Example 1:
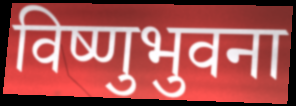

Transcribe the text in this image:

विष्णुभुवना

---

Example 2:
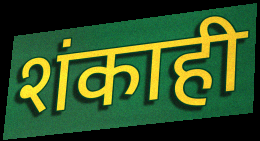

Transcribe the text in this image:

शंकाही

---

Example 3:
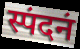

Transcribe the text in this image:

स्पंदनं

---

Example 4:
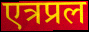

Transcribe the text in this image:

एत्रप्रल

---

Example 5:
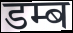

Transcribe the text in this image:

डम्ब